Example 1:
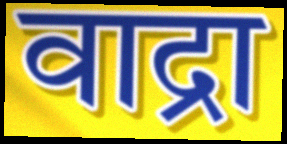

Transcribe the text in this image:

वाद्रा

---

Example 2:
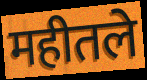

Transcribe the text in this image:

महीतले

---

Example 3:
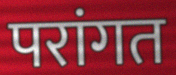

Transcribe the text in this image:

परांगत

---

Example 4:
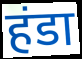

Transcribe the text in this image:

हंडा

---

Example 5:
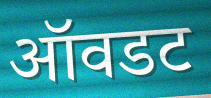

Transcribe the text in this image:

ऑवडट